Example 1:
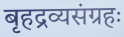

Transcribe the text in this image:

बृहद्रव्यसंग्रहः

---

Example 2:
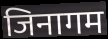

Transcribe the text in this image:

जिनागम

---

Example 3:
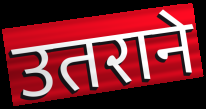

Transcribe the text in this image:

उतराने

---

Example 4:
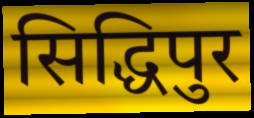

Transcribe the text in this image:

सिद्धिपुर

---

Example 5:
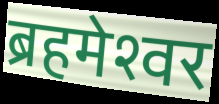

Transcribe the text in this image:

ब्रहमेश्वर